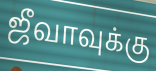
ஜீவாவுக்கு